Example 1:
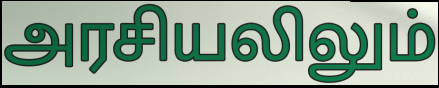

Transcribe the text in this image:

அரசியலிலும்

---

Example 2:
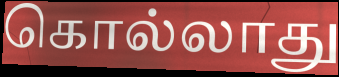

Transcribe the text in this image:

கொல்லாது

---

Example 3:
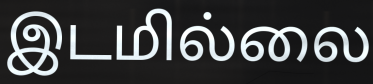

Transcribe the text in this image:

இடமில்லை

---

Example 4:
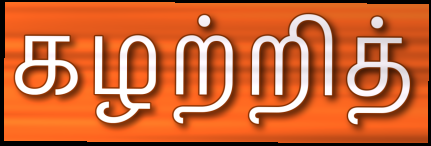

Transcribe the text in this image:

கழற்றித்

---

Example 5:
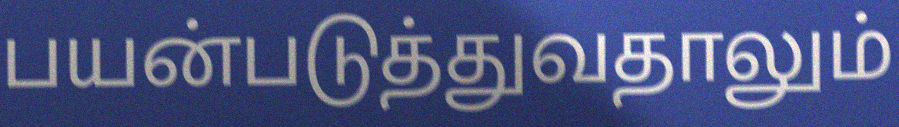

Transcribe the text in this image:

பயன்படுத்துவதாலும்